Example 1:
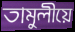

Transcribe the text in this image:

তামুলীয়ে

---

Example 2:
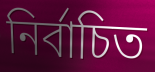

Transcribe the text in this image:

নিৰ্বাচিত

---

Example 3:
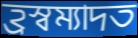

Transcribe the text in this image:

হ্ৰস্বম্যাদত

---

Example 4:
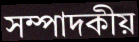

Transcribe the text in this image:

সম্পাদকীয়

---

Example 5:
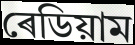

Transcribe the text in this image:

ৰেডিয়াম